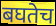
बघतेच